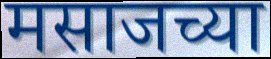
मसाजच्या